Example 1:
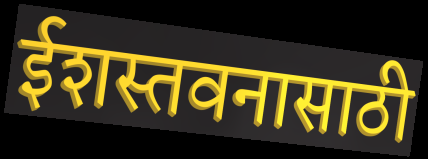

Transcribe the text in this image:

ईशस्तवनासाठी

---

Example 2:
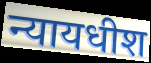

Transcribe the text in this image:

न्यायधीश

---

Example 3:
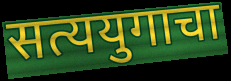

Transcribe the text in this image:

सत्ययुगाचा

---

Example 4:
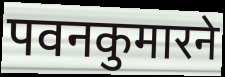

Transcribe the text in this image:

पवनकुमारने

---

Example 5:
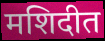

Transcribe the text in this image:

मशिदीत